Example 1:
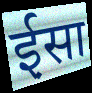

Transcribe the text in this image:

ई़सा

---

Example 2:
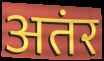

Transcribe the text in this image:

अतंर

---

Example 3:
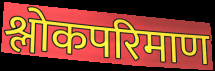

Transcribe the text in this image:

श्लोकपरिमाण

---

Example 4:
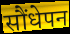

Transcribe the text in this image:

सौंधेपन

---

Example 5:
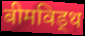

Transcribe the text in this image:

बीमविड्थ